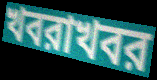
খবরাখবর